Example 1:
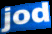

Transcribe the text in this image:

jod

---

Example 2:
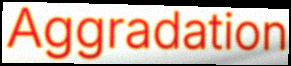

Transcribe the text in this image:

Aggradation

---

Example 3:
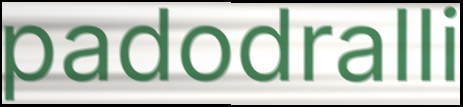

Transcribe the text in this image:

padodralli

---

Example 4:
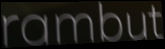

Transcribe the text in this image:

rambut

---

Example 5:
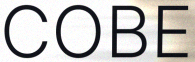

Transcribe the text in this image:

COBE